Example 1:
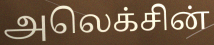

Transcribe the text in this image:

அலெக்சின்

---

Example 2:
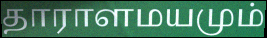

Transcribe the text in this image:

தாராளமயமும்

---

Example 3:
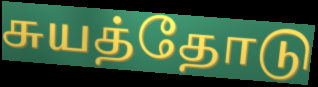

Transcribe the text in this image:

சுயத்தோடு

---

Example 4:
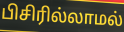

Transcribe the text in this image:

பிசிரில்லாமல்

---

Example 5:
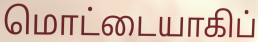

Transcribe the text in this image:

மொட்டையாகிப்